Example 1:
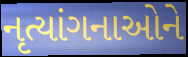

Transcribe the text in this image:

નૃત્યાંગનાઓને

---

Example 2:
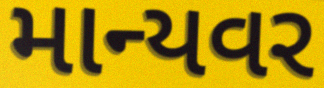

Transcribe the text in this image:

માન્યવર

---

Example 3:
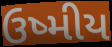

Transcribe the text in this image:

ઉષ્મીય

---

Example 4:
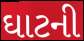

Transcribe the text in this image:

ઘાટની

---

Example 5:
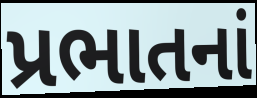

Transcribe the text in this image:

પ્રભાતનાં